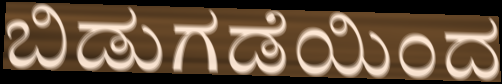
ಬಿಡುಗಡೆಯಿಂದ